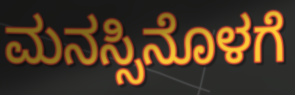
ಮನಸ್ಸಿನೊಳಗೆ